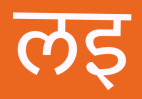
लइ